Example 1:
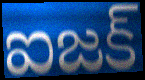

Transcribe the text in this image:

ఐజక్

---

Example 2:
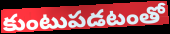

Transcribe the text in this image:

కుంటుపడటంతో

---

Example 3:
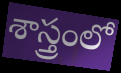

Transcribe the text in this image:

శాస్త్రంలో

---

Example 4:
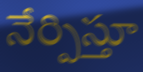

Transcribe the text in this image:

నేర్పిస్తూ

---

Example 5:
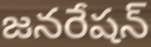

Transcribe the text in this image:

జనరేషన్